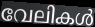
വേലികൾ